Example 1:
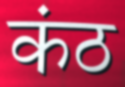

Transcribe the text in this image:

कंठ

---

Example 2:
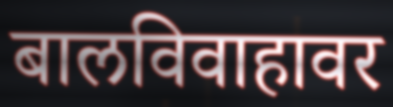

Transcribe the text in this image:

बालविवाहावर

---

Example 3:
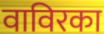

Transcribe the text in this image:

वाविरका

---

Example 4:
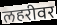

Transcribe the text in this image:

लहरीवर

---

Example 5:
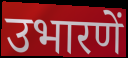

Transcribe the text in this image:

उभारणें